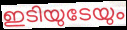
ഇടിയുടേയും